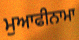
ਮੁਆਫੀਨਾਮਾ